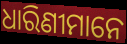
ଧାରିଣୀମାନେ